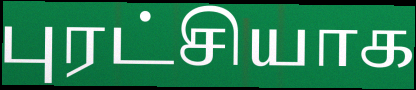
புரட்சியாக